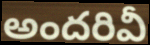
అందరివీ